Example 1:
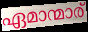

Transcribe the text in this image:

ഏമാന്മാര്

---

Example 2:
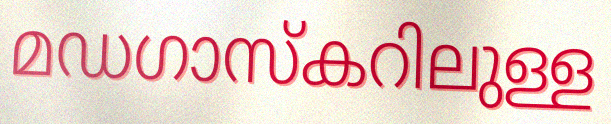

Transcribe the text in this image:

മഡഗാസ്കറിലുള്ള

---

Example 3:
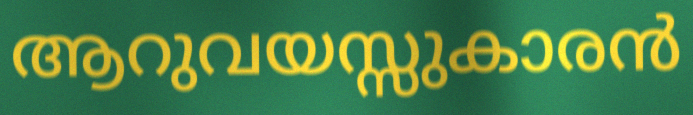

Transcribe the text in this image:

ആറുവയസ്സുകാരൻ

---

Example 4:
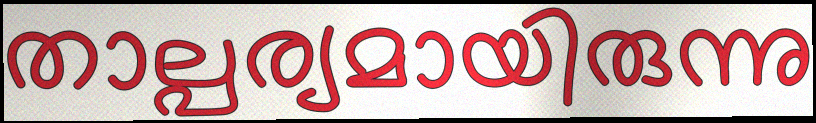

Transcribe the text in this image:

താല്പര്യമായിരുന്നു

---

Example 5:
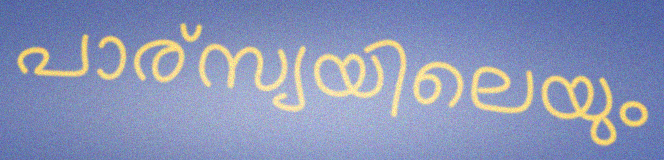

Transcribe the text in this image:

പാര്സ്യയിലെയും